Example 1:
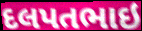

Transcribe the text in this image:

દલપતભાઇ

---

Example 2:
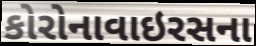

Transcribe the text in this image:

કોરોનાવાઇરસના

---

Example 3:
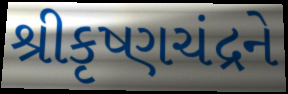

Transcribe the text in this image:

શ્રીકૃષ્ણચંદ્રને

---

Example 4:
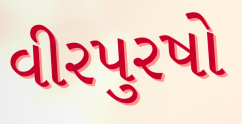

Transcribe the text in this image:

વીરપુરષો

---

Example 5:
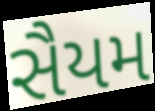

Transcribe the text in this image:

સૈયમ